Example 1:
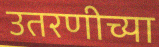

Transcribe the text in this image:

उतरणीच्या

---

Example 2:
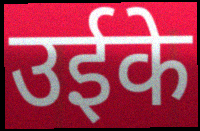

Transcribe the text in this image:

उईके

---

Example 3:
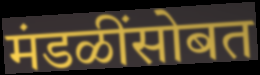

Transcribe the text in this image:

मंडळींसोबत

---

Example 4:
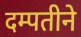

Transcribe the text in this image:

दम्पतीने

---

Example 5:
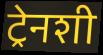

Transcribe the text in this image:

ट्रेनशी